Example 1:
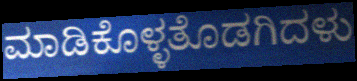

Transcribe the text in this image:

ಮಾಡಿಕೊಳ್ಳತೊಡಗಿದಳು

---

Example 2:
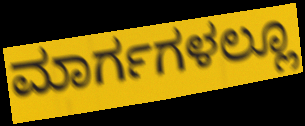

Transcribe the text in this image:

ಮಾರ್ಗಗಳಲ್ಲೂ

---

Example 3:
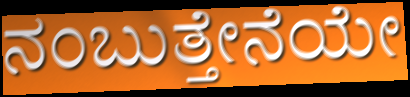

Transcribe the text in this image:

ನಂಬುತ್ತೇನೆಯೇ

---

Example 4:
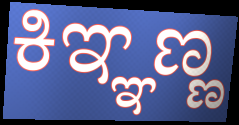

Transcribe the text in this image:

ಕಿಞ್ಞಣ್ಣ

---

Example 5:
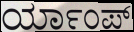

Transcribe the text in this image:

ರ್ಯಾಂಪ್